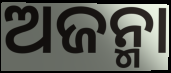
ଅଜନ୍ମା